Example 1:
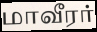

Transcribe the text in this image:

மாவீரர்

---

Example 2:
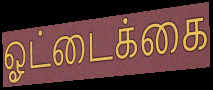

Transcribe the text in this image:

ஓட்டைக்கை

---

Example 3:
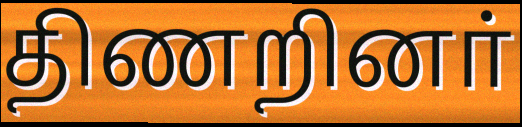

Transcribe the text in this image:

திணறினர்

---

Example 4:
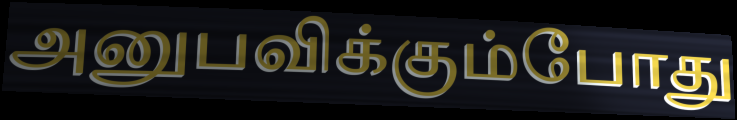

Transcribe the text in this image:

அனுபவிக்கும்போது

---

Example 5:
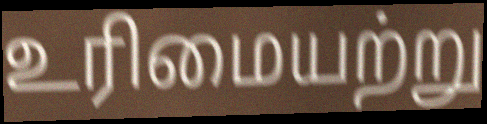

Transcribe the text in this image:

உரிமையற்று